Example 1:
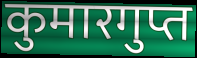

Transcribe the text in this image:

कुमारगुप्त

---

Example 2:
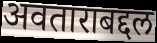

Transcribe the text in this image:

अवताराबद्दल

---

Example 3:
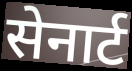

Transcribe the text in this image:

सेनार्ट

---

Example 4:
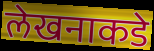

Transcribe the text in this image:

लेखनाकडे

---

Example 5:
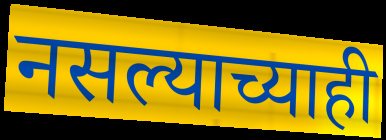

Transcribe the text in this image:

नसल्याच्याही